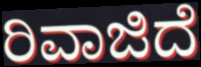
ರಿವಾಜಿದೆ